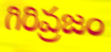
గిరివ్రజం